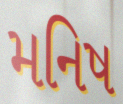
મનિષ